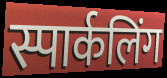
स्पार्कलिंग